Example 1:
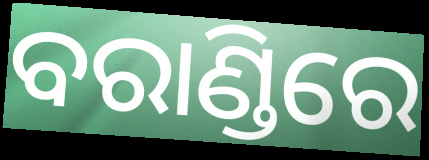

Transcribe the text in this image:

ବରାଣ୍ଡିରେ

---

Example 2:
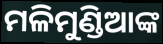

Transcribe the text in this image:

ମଳିମୁଣ୍ଡିଆଙ୍କ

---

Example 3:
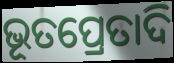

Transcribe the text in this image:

ଭୂତପ୍ରେତାଦି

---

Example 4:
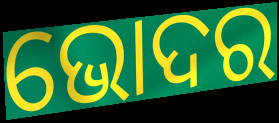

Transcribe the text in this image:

ଭୋଦର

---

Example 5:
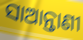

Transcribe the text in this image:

ସାଆନ୍ତାଣୀ